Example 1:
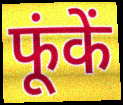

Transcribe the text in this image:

फूंकें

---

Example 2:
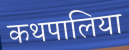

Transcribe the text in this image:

कथपालिया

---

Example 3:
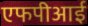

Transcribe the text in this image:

एफपीआई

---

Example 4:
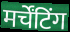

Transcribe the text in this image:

मर्चेंटिंग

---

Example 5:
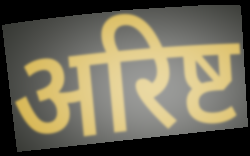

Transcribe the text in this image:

अरिष्ट